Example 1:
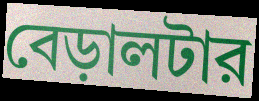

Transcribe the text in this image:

বেড়ালটার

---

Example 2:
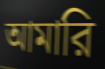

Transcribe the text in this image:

আমারি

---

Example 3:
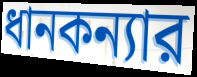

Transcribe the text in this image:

ধানকন্যার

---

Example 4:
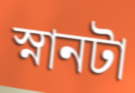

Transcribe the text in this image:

স্নানটা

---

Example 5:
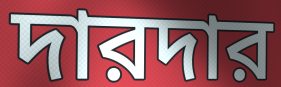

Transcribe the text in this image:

দারদার